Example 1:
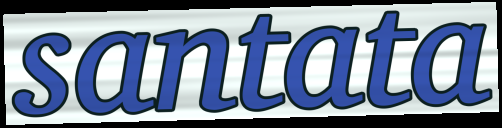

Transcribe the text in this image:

santata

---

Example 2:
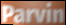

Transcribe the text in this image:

Parvin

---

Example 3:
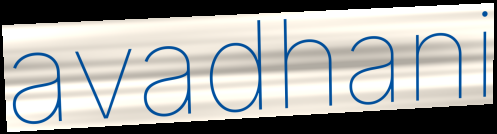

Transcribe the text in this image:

avadhani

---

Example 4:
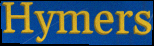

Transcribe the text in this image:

Hymers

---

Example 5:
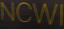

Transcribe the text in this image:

NCWI